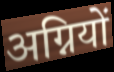
अग्नियों